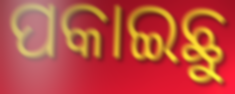
ପକାଇଛୁ